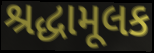
શ્રદ્ધામૂલક